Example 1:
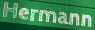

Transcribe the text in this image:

Hermann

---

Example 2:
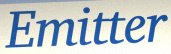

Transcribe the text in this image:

Emitter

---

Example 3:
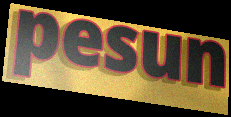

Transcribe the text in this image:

pesun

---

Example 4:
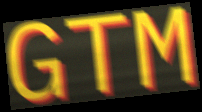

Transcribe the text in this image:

GTM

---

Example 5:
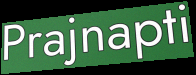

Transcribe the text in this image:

Prajnapti